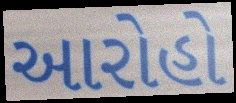
આરોહો